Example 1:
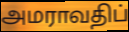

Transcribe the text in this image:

அமராவதிப்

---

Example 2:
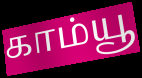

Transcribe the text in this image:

காம்யூ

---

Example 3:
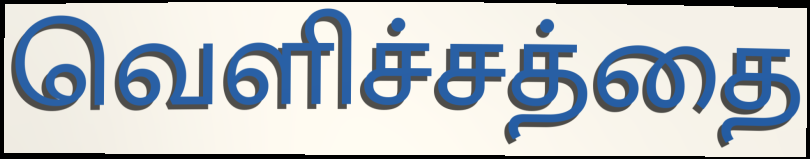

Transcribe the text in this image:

வெளிச்சத்தை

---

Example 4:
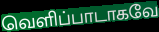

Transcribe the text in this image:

வெளிப்பாடாகவே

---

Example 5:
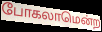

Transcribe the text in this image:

போகலாமென்ற